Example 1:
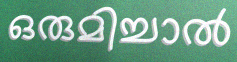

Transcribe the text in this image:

ഒരുമിച്ചാൽ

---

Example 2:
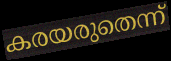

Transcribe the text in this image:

കരയരുതെന്ന്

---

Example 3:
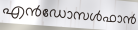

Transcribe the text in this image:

എൻഡോസൾഫാൻ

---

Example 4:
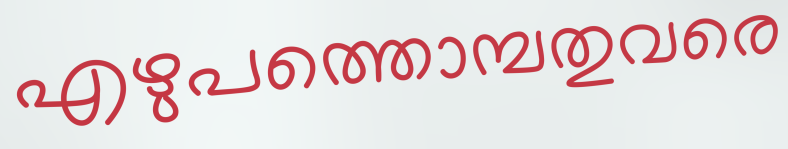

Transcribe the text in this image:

എഴുപത്തൊമ്പതുവരെ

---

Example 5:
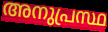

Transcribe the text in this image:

അനുപ്രസ്ഥ